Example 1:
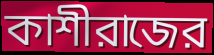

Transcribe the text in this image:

কাশীরাজের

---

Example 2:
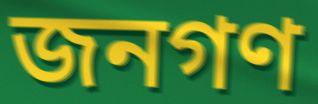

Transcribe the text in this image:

জনগণ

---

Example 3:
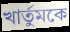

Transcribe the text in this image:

খার্তুমকে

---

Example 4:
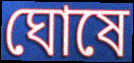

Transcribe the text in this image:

ঘোষে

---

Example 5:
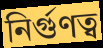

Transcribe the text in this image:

নির্গুণত্ব